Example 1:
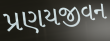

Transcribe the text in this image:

પ્રણયજીવન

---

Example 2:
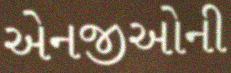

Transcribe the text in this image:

એનજીઓની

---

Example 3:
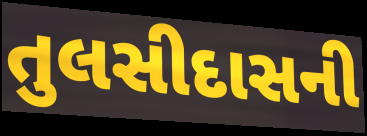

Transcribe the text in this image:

તુલસીદાસની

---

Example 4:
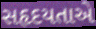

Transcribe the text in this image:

સહૃદયતાએ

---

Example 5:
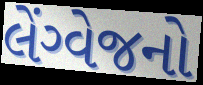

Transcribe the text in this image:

લેંગ્વેજનો